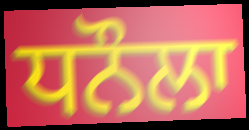
ਧਨੌਲਾ